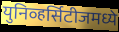
युनिव्हर्सिटीजमध्ये